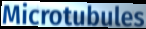
Microtubules